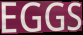
EGGS